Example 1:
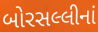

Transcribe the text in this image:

બોરસલ્લીનાં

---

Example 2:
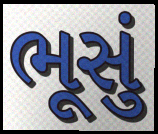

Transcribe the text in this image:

ભૂસું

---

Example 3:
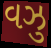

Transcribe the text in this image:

વઝુ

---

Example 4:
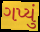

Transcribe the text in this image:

ગપ્યું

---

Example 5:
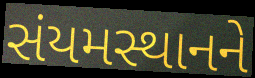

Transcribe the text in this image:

સંયમસ્થાનને